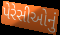
પેરેસીઓનું